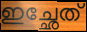
ഇച്ഛേത്